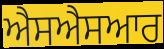
ਐਸਐਸਆਰ